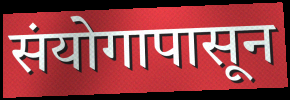
संयोगापासून